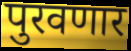
पुरवणार